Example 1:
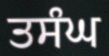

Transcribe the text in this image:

ਤਸੰਘ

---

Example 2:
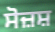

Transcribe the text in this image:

ਸੋਜ਼ਸ਼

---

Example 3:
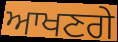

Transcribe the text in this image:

ਆਖਣਗੇ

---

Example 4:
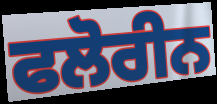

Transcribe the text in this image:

ਫਲੋਰੀਨ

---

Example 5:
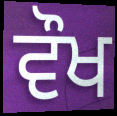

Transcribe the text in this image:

ਵੌਖ